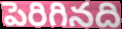
పెరిగినది